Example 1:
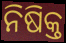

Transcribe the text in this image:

ନିଷିକ୍ତ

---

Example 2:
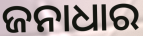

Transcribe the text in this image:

ଜନାଧାର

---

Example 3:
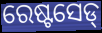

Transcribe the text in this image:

ରେଷ୍ଟସେଡ୍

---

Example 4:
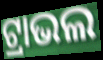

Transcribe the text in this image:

ଟ୍ରାଭଲ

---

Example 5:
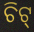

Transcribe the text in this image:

ଚିଟ୍